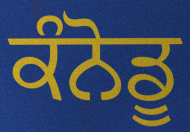
ਕੰਨੋਡੂ